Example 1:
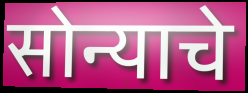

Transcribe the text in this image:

सोन्याचे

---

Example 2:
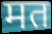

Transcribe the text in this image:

मत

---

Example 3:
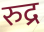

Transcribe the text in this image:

रुद्र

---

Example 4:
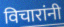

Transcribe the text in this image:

विचारांनी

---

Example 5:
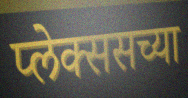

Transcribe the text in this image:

प्लेक्ससच्या